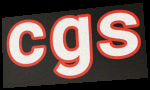
cgs